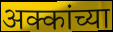
अक्कांच्या